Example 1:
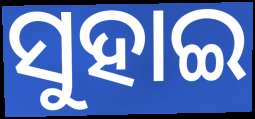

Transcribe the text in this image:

ସୁହାଇ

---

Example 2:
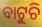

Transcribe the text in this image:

ବାଟୁଚି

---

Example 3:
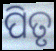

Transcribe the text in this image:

ପିତୃ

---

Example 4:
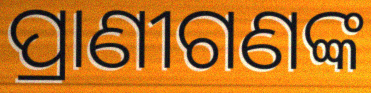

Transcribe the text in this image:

ପ୍ରାଣୀଗଣଙ୍କ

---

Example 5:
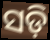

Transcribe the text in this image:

ସଡ଼ି